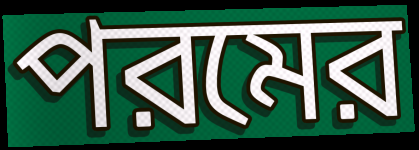
পরমের